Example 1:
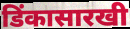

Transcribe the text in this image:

डिंकासारखी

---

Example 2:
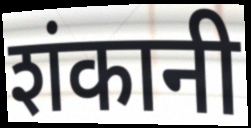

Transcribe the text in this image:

शंकानी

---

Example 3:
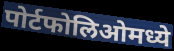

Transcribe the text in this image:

पोर्टफोलिओमध्ये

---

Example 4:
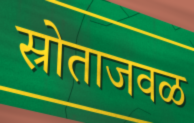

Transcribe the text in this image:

स्रोताजवळ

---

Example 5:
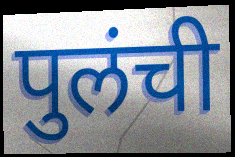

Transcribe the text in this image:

पुलंची